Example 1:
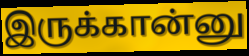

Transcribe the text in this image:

இருக்கான்னு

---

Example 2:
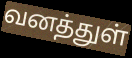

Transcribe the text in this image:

வனத்துள்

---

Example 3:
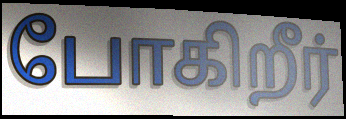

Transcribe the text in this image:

போகிறீர்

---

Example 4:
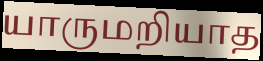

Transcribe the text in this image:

யாருமறியாத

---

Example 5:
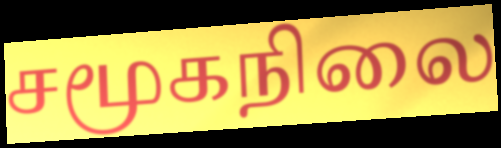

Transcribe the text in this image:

சமூகநிலை